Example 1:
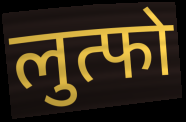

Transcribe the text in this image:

लुत्फो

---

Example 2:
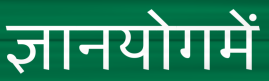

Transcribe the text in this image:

ज्ञानयोगमें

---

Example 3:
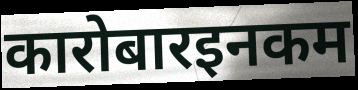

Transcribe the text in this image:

कारोबारइनकम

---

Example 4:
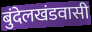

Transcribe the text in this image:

बुंदेलखंडवासी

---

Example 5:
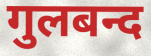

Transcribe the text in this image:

गुलबन्द